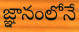
జ్ఞానంలోనే